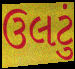
ઉલટું